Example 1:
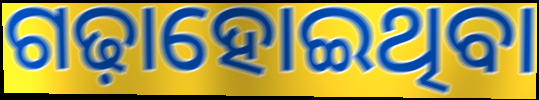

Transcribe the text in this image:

ଗଢ଼ାହୋଇଥିବା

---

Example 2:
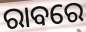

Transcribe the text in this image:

ରାବରେ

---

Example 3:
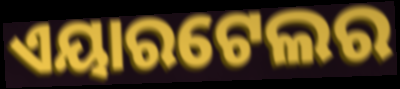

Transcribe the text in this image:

ଏୟାରଟେଲର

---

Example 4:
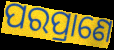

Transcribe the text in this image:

ପରପ୍ରାଣେ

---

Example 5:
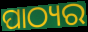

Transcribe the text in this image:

ପାଠ୍ୟର